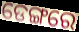
ଡେଙ୍ଗରେ